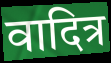
वादित्र